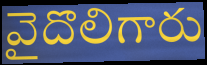
వైదొలిగారు